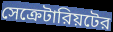
সেক্রেটারিয়টের